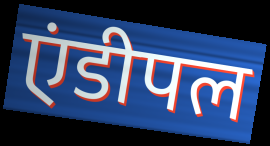
एंडीपल